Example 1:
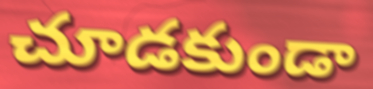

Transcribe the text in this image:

చూడకుండా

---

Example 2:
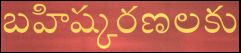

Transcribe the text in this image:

బహిష్కరణలకు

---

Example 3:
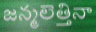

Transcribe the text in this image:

జన్మలెత్తినా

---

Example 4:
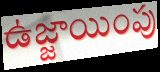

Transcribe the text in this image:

ఉజ్జాయింపు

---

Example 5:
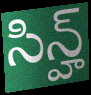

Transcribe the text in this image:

సిన్హ్